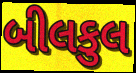
બીલકુલ